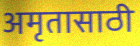
अमृतासाठी